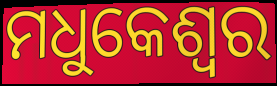
ମଧୁକେଶ୍ୱର